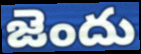
జెందు